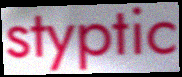
styptic